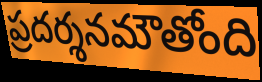
ప్రదర్శనమౌతోంది